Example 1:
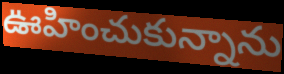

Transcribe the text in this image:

ఊహించుకున్నాను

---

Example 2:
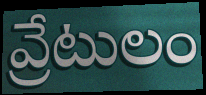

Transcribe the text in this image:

వ్రేటులం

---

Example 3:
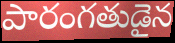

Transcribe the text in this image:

పారంగతుడైన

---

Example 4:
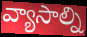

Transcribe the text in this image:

వ్యాసాల్ని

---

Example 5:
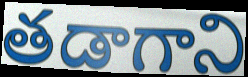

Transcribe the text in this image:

తడాగాని